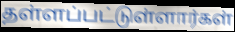
தள்ளப்பட்டுள்ளார்கள்